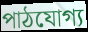
পাঠযোগ্য